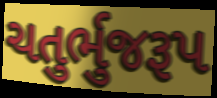
ચતુર્ભુજરૂપ